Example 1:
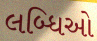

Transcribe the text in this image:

લબ્ધિઓ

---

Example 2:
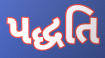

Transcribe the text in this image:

પદ્ધતિ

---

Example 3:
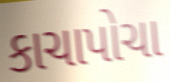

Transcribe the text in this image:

કાચાપોચા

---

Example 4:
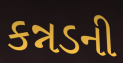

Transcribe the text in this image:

કન્નડની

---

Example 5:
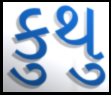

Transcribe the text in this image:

કુથુ